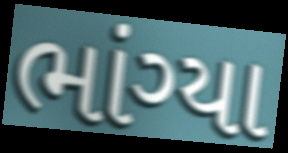
ભાંગ્યા